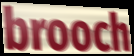
brooch